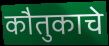
कौतुकाचे